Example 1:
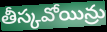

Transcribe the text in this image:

తీస్కవోయిన్రు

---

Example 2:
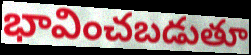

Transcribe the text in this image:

భావించబడుతూ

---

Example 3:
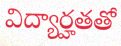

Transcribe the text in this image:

విద్యార్హతతో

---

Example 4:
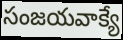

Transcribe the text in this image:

సంజయవాక్యే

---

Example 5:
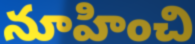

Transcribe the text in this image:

నూహించి